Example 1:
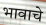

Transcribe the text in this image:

भावाचे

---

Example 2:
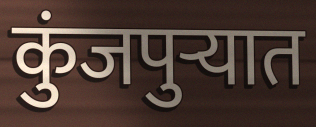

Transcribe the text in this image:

कुंजपुऱ्यात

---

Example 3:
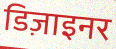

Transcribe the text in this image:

डिज़ाइनर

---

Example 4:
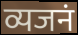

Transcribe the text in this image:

व्यजनं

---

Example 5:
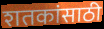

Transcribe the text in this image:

शतकांसाठी